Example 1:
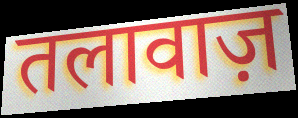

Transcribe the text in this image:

तलावाज़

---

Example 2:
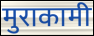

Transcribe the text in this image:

मुराकामी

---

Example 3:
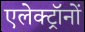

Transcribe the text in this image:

एलेक्ट्रॉनों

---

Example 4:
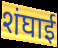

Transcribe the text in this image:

शंघाई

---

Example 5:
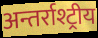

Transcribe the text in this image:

अन्तर्राश्ट्रीय